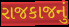
રાજકાજનું